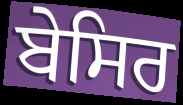
ਬੇਸਿਰ